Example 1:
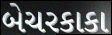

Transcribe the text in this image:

બેચરકાકા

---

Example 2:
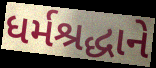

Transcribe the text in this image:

ધર્મશ્રદ્ધાને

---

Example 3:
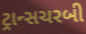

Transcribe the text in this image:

ટ્રાન્સચરબી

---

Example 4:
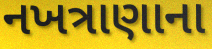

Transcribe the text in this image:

નખત્રાણાના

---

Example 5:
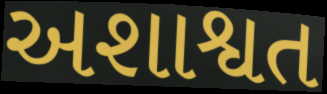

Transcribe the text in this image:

અશાશ્વત